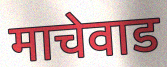
माचेवाड